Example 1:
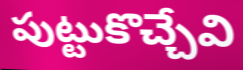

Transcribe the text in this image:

పుట్టుకొచ్చేవి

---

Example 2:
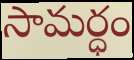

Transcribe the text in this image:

సామర్ధం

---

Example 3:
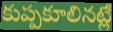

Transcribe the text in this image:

కుప్పకూలినట్లే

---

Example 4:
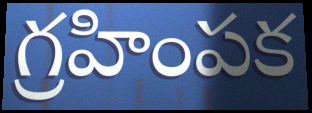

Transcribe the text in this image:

గ్రహింపక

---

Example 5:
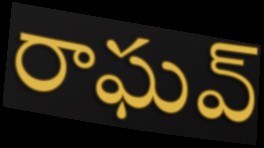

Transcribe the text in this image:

రాఘవ్